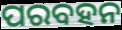
ପରବହନ